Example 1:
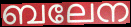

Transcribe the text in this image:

ബലേന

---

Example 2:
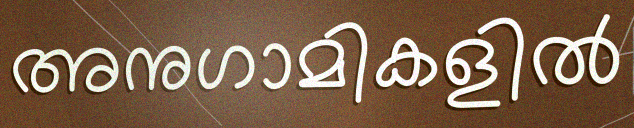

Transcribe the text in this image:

അനുഗാമികളിൽ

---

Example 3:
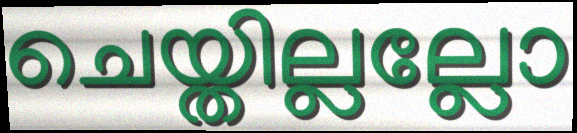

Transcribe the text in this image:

ചെയ്തില്ലല്ലോ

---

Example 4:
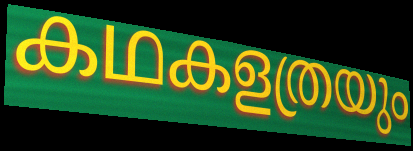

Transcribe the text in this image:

കഥകളത്രയും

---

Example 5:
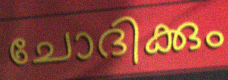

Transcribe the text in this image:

ചോദിക്കും